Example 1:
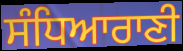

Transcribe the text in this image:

ਸੰਧਿਆਰਾਣੀ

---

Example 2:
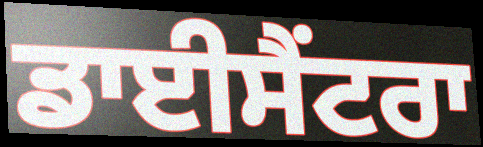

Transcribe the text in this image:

ਡਾਈਸੈਂਟਰਾ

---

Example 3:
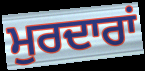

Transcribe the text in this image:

ਮੁਰਦਾਰਾਂ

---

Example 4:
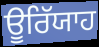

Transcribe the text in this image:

ਊਰਿੱਯਾਹ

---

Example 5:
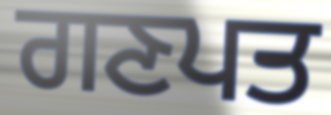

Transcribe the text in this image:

ਗਣਪਤ